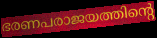
ഭരണപരാജയത്തിന്റെ